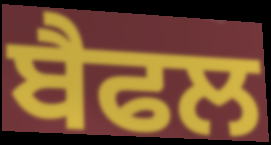
ਬੈਫਲ